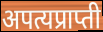
अपत्यप्राप्ती